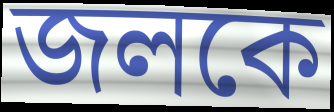
জলকে